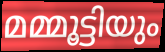
മമ്മൂട്ടിയും